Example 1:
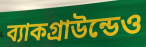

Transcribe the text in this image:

ব্যাকগ্রাউন্ডেও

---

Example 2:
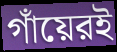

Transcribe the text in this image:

গাঁয়েরই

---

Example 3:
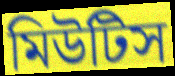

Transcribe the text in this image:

মিউটিস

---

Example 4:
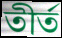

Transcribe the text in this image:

তীর্ত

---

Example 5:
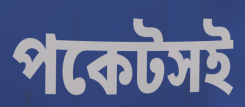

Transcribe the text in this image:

পকেটসই